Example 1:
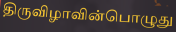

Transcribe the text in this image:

திருவிழாவின்பொழுது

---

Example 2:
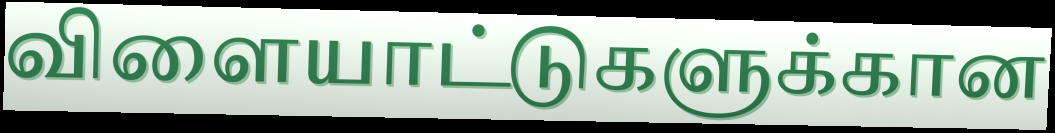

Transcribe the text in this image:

விளையாட்டுகளுக்கான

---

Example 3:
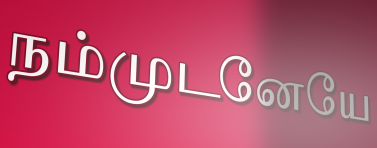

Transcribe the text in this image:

நம்முடனேயே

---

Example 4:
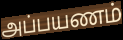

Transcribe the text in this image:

அப்பயணம்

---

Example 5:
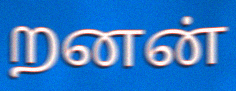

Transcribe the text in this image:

றனன்